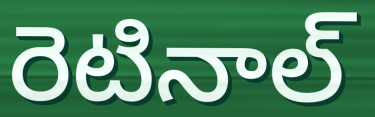
రెటినాల్